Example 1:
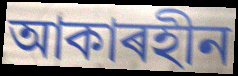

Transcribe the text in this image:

আকাৰহীন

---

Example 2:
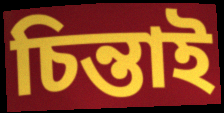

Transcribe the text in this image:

চিন্তাই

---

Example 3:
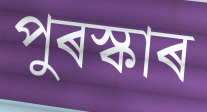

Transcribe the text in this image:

পুৰস্কাৰ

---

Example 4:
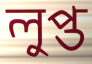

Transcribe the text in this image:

লুপ্ত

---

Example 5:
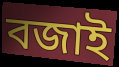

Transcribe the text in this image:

বজাই